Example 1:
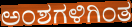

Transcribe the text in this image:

ಅಂಶಗಳಿಗಿಂತ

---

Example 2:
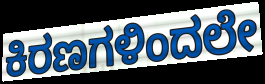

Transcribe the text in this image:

ಕಿರಣಗಳಿಂದಲೇ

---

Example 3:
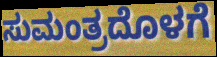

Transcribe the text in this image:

ಸುಮಂತ್ರದೊಳಗೆ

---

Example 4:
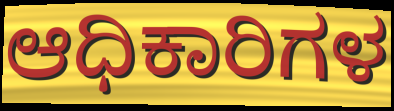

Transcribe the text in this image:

ಆಧಿಕಾರಿಗಳ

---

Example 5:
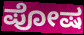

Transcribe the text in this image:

ಪೋಷ